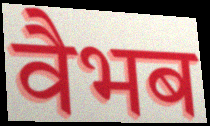
वैभब